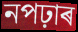
নপঢ়াৰ